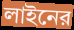
লাইনের